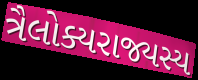
ત્રૈલોક્યરાજ્યસ્ય